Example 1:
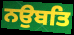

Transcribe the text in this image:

ਨਉਬਤਿ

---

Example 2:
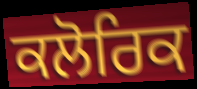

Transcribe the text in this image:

ਕਲੋਰਿਕ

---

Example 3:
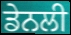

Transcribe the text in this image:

ਡੇਨਲੀ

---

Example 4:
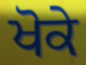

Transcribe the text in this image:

ਖੋਕੇ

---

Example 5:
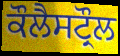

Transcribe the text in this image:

ਕੌਲੈਸਟ੍ਰੌਲ